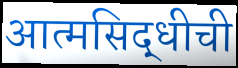
आत्मसिद्धीची